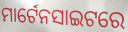
ମାର୍ଟେନସାଇଟରେ